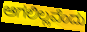
ಆಗಲಿಲ್ಲವೆಂದು